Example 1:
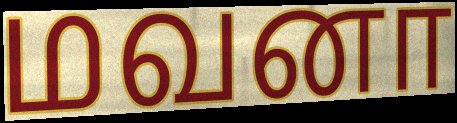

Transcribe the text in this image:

மவனா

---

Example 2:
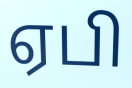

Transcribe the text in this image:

ஏபி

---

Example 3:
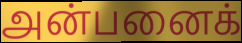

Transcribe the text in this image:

அன்பனைக்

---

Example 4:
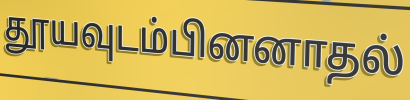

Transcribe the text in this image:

தூயவுடம்பினனாதல்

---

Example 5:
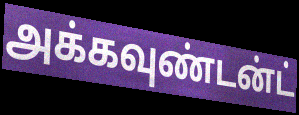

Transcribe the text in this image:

அக்கவுண்டன்ட்